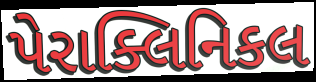
પેરાક્લિનિકલ